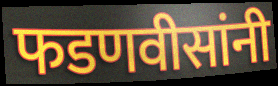
फडणवीसांनी